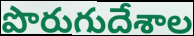
పొరుగుదేశాల